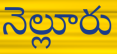
నెల్లూరు